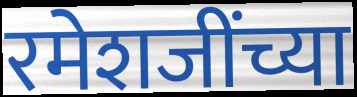
रमेशजींच्या